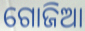
ଗୋଜିଆ